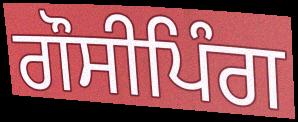
ਗੌਸੀਪਿੰਗ